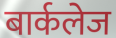
बार्कलेज